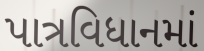
પાત્રવિધાનમાં